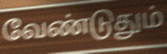
வேண்டுதும்